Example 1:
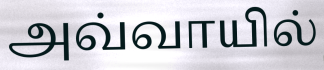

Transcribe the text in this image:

அவ்வாயில்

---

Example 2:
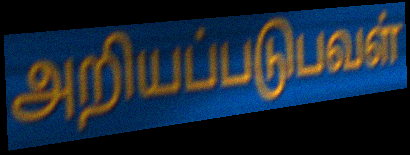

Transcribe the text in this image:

அறியப்படுபவள்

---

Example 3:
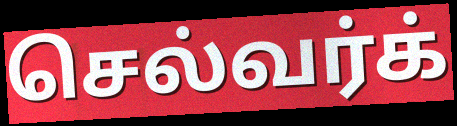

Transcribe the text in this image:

செல்வர்க்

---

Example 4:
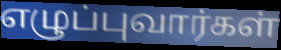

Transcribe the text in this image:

எழுப்புவார்கள்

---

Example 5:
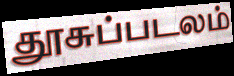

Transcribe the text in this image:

தூசுப்படலம்